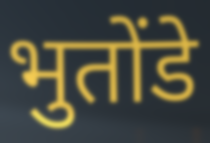
भुतोंडे